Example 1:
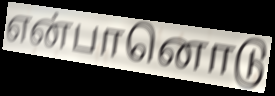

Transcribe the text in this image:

என்பானொடு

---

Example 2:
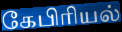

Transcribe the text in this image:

கேபிரியல்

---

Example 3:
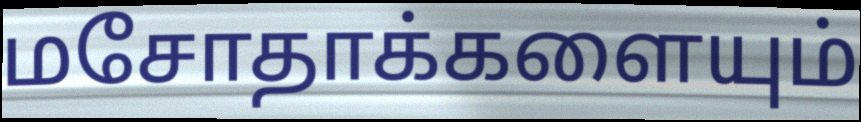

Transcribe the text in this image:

மசோதாக்களையும்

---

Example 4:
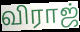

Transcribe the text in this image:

விராஜ்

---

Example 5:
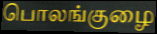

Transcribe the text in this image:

பொலங்குழை